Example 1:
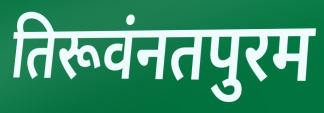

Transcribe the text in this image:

तिरूवंनतपुरम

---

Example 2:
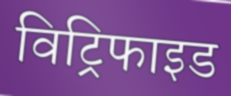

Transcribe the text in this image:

विट्रिफाइड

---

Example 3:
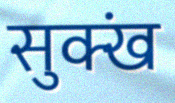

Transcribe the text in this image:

सुक्खं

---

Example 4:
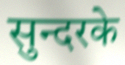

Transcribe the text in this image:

सुन्दरके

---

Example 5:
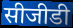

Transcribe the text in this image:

सीजीडी